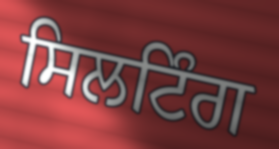
ਸਿਲਟਿੰਗ